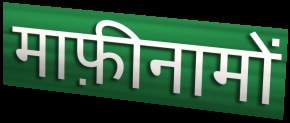
माफ़ीनामों